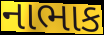
નાભાક